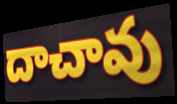
దాచావు